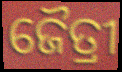
ଜୈତ୍ରୀ